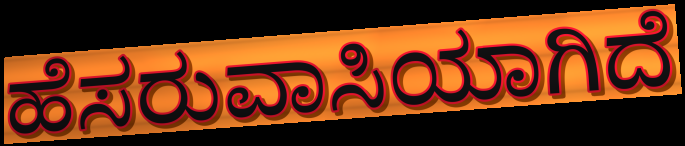
ಹೆಸರುವಾಸಿಯಾಗಿದೆ